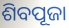
ଶିବପୂଜା